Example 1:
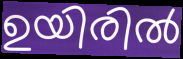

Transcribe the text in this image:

ഉയിരിൽ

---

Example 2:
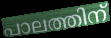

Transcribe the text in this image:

പാലത്തിന്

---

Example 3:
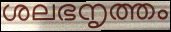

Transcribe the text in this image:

ശലഭനൃത്തം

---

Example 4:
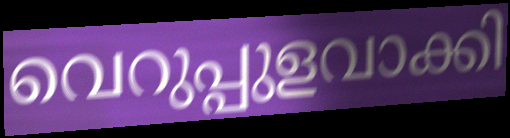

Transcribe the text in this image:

വെറുപ്പുളവാക്കി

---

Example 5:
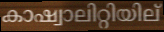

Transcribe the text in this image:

കാഷ്വാലിറ്റിയില്